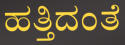
ಹತ್ತಿದಂತೆ